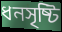
ধনসৃষ্টি